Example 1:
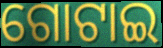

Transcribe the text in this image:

ଗୋଟାଇ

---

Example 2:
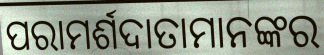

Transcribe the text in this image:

ପରାମର୍ଶଦାତାମାନଙ୍କର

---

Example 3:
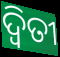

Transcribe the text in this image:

ଦ୍ୱିତୀ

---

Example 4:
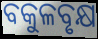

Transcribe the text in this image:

ବକୁଳବୃକ୍ଷ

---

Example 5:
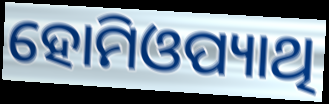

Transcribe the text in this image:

ହୋମିଓପ୍ୟାଥି